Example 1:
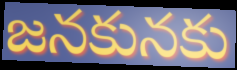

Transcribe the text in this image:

జనకునకు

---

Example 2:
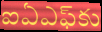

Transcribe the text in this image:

ఐఏఎఫ్‌కు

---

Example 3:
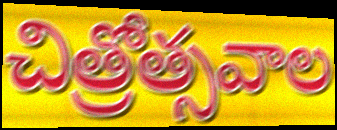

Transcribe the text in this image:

చిత్రోత్సవాల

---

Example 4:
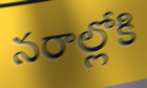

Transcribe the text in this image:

నరాల్లోకి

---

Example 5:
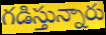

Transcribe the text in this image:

గడిస్తున్నారు